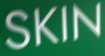
SKIN